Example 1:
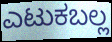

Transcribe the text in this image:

ಎಟುಕಬಲ್ಲ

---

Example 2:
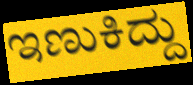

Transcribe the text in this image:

ಇಣುಕಿದ್ದು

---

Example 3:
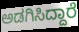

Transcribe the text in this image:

ಅಡಗಿಸಿದ್ದಾರೆ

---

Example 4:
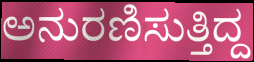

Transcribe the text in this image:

ಅನುರಣಿಸುತ್ತಿದ್ದ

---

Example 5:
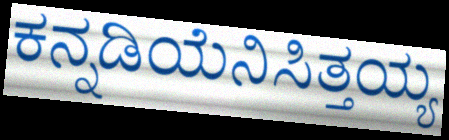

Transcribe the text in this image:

ಕನ್ನಡಿಯೆನಿಸಿತ್ತಯ್ಯ